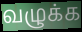
வழுக்க